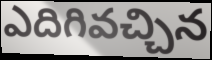
ఎదిగివచ్చిన